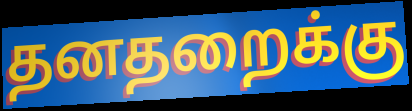
தனதறைக்கு